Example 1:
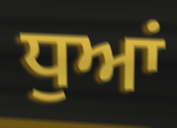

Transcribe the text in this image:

ਧੁਆਂ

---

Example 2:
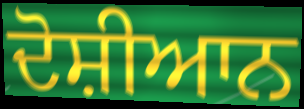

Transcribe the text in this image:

ਦੋਸ਼ੀਆਨ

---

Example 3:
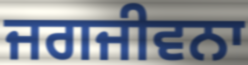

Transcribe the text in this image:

ਜਗਜੀਵਨਾ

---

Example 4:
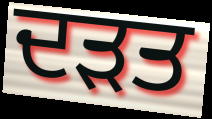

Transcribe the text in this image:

ਦੜਤ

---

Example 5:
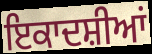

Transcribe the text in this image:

ਇਕਾਦਸ਼ੀਆਂ